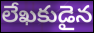
లేఖకుడైన